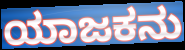
ಯಾಜಕನು